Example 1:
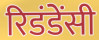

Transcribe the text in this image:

रिडंडेंसी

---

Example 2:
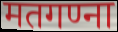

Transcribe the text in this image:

मतगण्ना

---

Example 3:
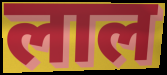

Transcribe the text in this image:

लाल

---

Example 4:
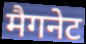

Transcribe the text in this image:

मैगनेट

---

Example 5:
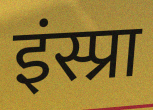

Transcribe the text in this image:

इंस्प्रा